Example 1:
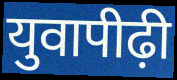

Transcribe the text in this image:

युवापीढ़ी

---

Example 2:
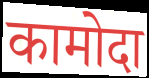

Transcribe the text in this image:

कामोदा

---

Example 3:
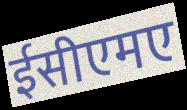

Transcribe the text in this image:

ईसीएमए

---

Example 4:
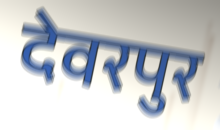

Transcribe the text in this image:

देवरपुर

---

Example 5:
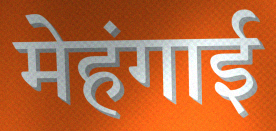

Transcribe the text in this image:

मेहंगाई